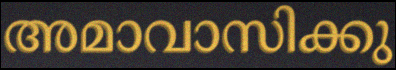
അമാവാസിക്കു